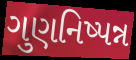
ગુણનિષ્પન્ન